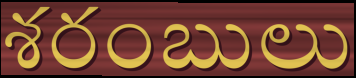
శరంబులు